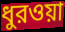
ধুরওয়া